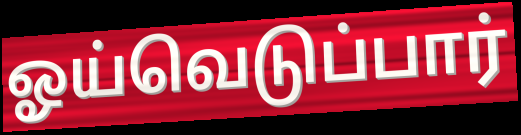
ஓய்வெடுப்பார்